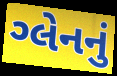
ગ્લેનનું